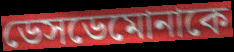
ডেসডেমোনাকে